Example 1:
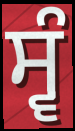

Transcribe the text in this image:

ਸ੍ਵੰ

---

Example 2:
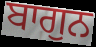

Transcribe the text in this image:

ਬਾਗੁਨ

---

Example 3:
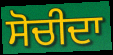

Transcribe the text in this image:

ਸੋਚੀਦਾ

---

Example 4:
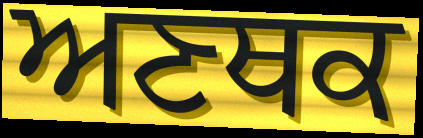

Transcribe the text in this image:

ਅਣਥਕ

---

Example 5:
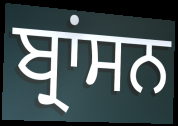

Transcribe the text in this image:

ਬ੍ਰਾਂਸਨ